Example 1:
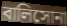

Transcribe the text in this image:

বালিসোনা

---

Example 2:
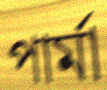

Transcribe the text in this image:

পার্মা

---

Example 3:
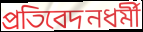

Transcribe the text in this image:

প্রতিবেদনধর্মী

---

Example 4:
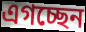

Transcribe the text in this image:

এগচ্ছেন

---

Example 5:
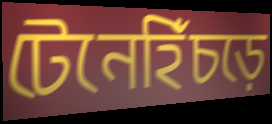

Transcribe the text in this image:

টেনেহিঁচড়ে